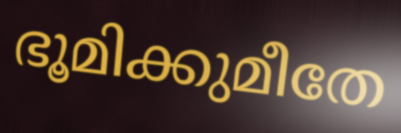
ഭൂമിക്കുമീതേ